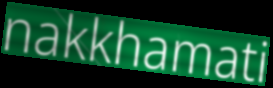
nakkhamati